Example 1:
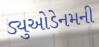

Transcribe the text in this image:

ડ્યુઓડેનમની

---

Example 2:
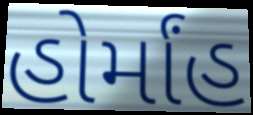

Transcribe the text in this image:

હોર્માંહ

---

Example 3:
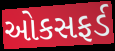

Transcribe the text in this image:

ઓકસફર્ડ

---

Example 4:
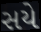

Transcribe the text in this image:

સયે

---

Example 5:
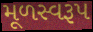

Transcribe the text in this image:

મૂળસ્વરૂપ